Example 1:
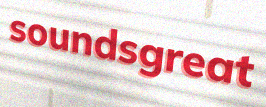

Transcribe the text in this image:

soundsgreat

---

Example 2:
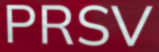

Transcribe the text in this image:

PRSV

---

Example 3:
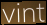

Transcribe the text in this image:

vint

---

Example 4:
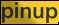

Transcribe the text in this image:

pinup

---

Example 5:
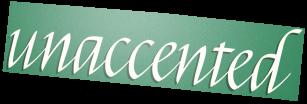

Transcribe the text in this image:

unaccented